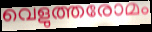
വെളുത്തരോമം